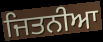
ਜਿਤਨੀਆ